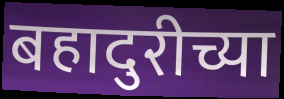
बहादुरीच्या